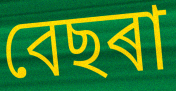
বেছৰা